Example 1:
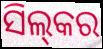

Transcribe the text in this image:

ସିଲ୍‍କର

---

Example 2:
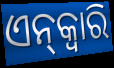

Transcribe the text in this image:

ଏନ୍‌କ୍ୱାରି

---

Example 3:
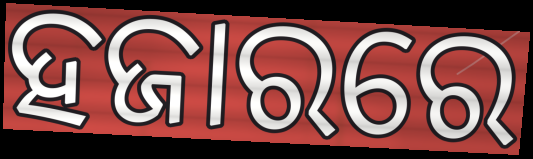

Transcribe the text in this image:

ହଜାରରେ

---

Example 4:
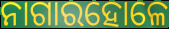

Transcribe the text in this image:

ନାଗାରହୋଳେ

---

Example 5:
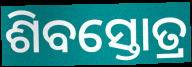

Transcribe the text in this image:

ଶିବସ୍ତୋତ୍ର